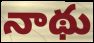
నాథు